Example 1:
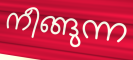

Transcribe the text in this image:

നീങ്ങുന്ന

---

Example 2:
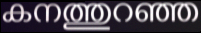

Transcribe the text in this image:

കനത്തുറഞ്ഞ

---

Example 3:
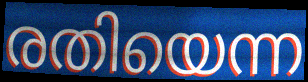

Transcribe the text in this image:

രതിയെന്ന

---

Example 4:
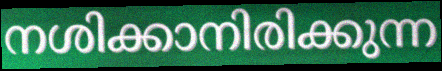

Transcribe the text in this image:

നശിക്കാനിരിക്കുന്ന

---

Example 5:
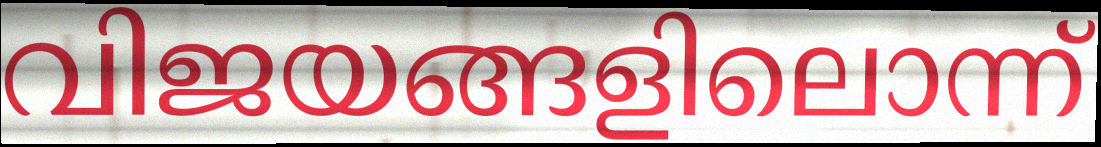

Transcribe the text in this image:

വിജയങ്ങളിലൊന്ന്